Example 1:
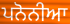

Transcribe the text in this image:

ਪਨੋਨੀਆ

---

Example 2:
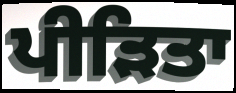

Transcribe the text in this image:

ਪੀੜਿਤਾ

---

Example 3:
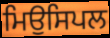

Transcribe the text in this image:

ਮਿਉਸਿਪਲ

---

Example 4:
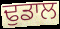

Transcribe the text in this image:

ਢੁਡਾਲ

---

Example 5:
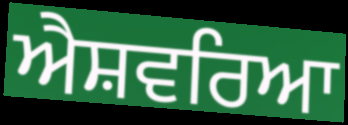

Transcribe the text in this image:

ਐਸ਼ਵਰਿਆ